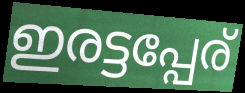
ഇരട്ടപ്പേര്